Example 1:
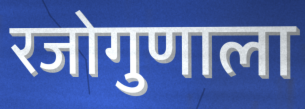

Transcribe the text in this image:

रजोगुणाला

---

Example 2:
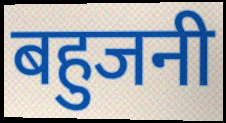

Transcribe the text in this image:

बहुजनी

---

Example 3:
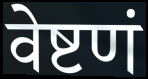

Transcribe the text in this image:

वेष्टणं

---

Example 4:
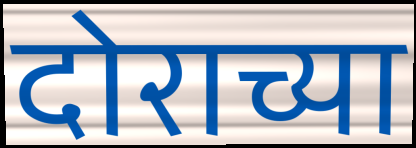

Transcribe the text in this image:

दोराच्या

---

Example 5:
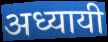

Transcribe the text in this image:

अध्यायी